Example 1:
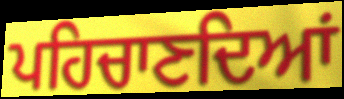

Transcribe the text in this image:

ਪਹਿਚਾਣਦਿਆਂ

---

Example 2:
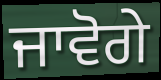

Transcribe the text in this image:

ਜਾਵੋਗੇ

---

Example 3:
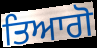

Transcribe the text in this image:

ਤਿਆਗੋ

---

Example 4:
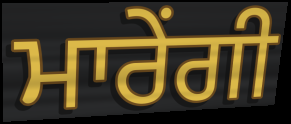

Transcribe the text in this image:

ਮਾਰੇਂਗੀ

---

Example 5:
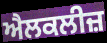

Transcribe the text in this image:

ਐਲਕਲੀਜ਼